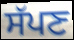
ਸੱਪਣ